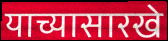
याच्यासारखे